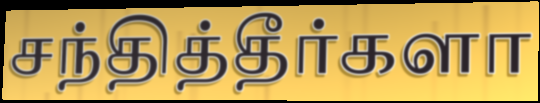
சந்தித்தீர்களா